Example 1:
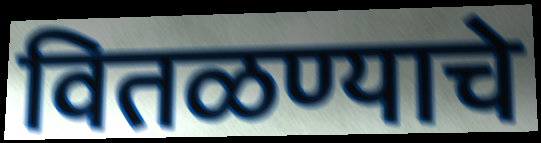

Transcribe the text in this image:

वितळण्याचे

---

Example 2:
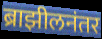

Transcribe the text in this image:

ब्राझीलनंतर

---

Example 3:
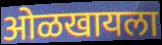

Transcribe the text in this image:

ओळखायला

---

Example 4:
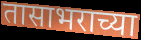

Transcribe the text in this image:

तासाभराच्या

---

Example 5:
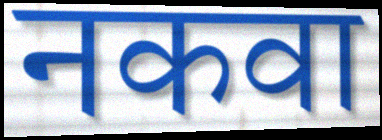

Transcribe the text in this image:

नकवा